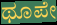
ಥೂಪೇ